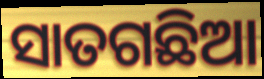
ସାତଗଛିଆ